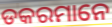
ଡକରମାନେ